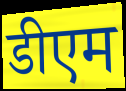
डीएम